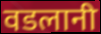
वडलानी